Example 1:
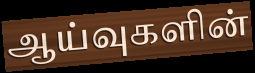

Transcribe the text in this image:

ஆய்வுகளின்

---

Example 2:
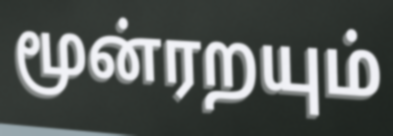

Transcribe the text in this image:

மூன்ரறயும்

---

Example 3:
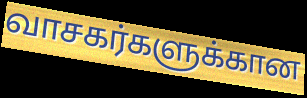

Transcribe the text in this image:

வாசகர்களுக்கான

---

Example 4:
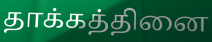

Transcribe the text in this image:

தாக்கத்தினை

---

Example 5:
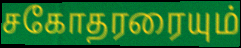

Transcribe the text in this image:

சகோதரரையும்